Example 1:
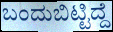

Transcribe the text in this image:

ಬಂದುಬಿಟ್ಟಿದ್ದೆ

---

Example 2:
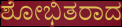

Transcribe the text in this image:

ಶೋಭಿತರಾದ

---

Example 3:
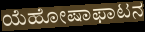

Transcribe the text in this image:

ಯೆಹೋಷಾಫಾಟನ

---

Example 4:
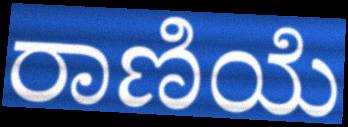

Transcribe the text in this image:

ರಾಣಿಯೆ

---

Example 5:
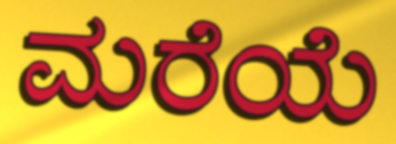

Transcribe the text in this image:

ಮರೆಯೆ